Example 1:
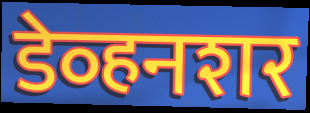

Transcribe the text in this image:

डेव्हनशर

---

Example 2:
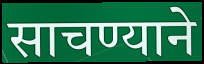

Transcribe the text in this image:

साचण्याने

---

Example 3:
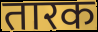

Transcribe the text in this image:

तारक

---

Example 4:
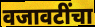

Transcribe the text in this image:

वजावटींचा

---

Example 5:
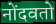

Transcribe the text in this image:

नोंदवतो